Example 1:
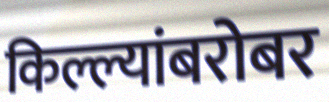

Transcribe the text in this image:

किल्ल्यांबरोबर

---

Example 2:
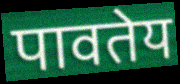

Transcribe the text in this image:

पावतेय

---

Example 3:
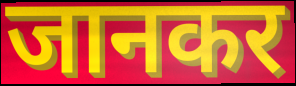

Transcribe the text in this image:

जानकर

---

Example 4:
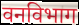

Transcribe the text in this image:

वनविभाग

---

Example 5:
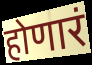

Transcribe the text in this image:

होणारं